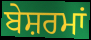
ਬੇਸ਼ਰਮਾਂ